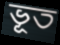
ভূত